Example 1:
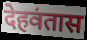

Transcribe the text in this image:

देहवंतास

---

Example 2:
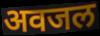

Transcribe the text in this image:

अवजल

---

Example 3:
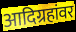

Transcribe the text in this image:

आदिग्रहांवर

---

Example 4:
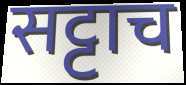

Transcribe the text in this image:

सट्टाच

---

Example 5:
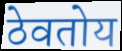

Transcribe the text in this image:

ठेवतोय